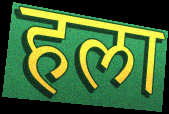
हला